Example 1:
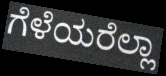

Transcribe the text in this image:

ಗೆಳೆಯರೆಲ್ಲಾ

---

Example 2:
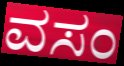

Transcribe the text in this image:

ವಸಂ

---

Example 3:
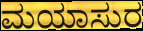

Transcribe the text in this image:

ಮಯಾಸುರ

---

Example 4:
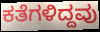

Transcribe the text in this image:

ಕತೆಗಳಿದ್ದವು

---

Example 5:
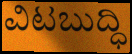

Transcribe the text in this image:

ವಿಟಬುದ್ಧಿ